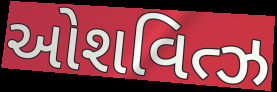
ઓશવિત્ઝ